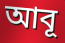
আবূ